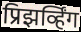
प्रिझर्व्हिंग